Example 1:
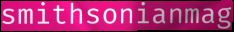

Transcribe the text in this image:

smithsonianmag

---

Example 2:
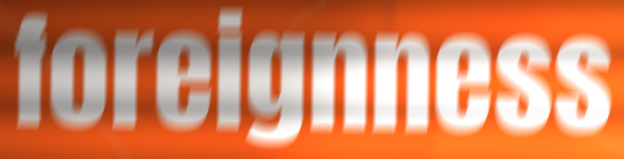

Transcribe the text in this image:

foreignness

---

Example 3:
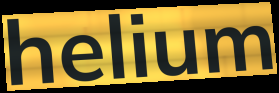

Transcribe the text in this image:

helium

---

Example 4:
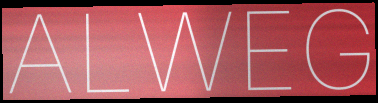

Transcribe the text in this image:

ALWEG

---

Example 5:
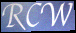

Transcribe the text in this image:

RCW